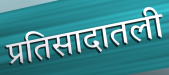
प्रतिसादातली